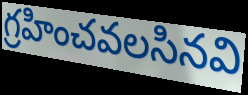
గ్రహించవలసినవి